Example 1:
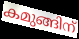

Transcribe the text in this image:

കമുങ്ങിന്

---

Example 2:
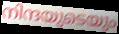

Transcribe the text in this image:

നിന്ദയുടെയും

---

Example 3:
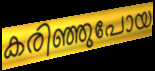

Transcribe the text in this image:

കരിഞ്ഞുപോയ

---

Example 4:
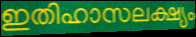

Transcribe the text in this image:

ഇതിഹാസലക്ഷ്യം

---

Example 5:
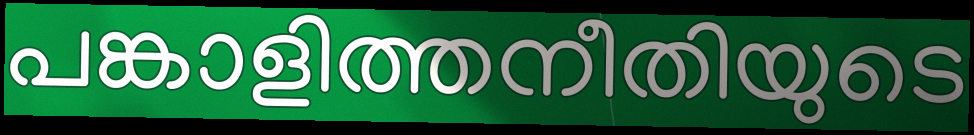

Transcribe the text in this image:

പങ്കാളിത്തനീതിയുടെ